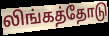
லிங்கத்தோடு